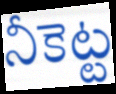
నీకెట్ట